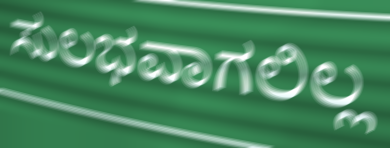
ಸುಲಭವಾಗಲಿಲ್ಲ